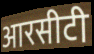
आरसीटी